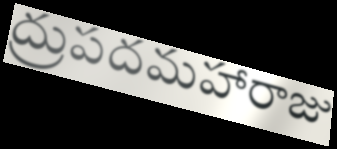
ద్రుపదమహారాజు